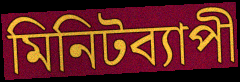
মিনিটব্যাপী